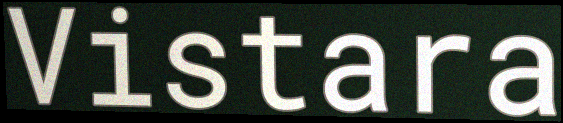
Vistara